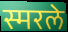
स्मरले